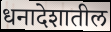
धनादेशातील